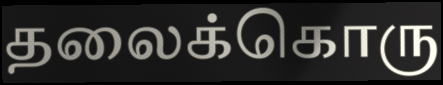
தலைக்கொரு